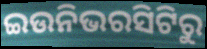
ଇଉନିଭରସିଟିରୁ